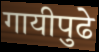
गायीपुढे